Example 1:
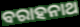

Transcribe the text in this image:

ବରାହନାଥ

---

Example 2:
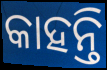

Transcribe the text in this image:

କାହନ୍ତି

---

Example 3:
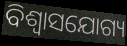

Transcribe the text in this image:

ବିଶ୍ବାସଯୋଗ୍ୟ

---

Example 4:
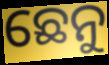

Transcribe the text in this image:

ଛେନୁ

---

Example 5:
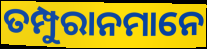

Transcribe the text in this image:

ତମ୍ପୁରାନମାନେ